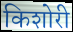
किशोरी